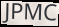
JPMC